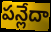
పన్లేదా